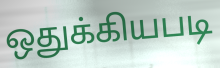
ஒதுக்கியபடி